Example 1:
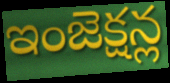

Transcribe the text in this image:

ఇంజెక్షన్ల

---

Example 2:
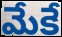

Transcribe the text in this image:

మేకే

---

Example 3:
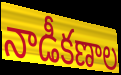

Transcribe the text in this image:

నాడీకణాల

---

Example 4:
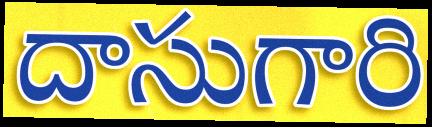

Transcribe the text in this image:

దాసుగారి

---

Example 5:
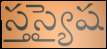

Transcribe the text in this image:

స్తస్యైష